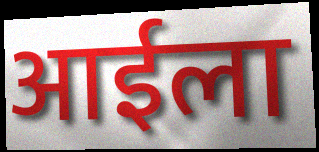
आईला